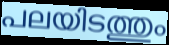
പലയിടത്തും